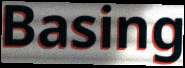
Basing